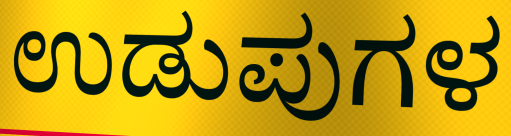
ಉಡುಪುಗಳ